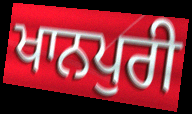
ਖਾਨਪੁਰੀ